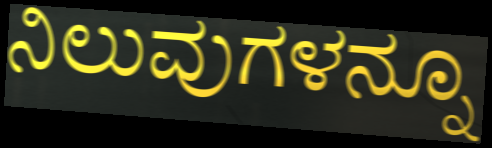
ನಿಲುವುಗಳನ್ನೂ